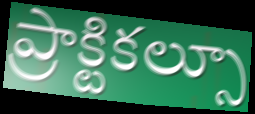
ప్రాక్టికల్సూ